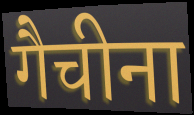
गैचीना